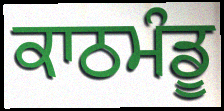
ਕਾਠਮੰਡੂ